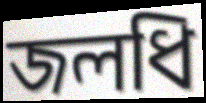
জলধি